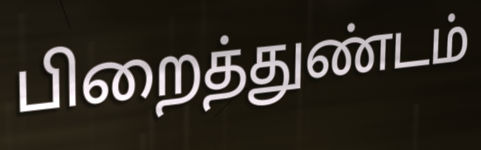
பிறைத்துண்டம்